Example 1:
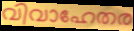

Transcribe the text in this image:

വിവാഹേതര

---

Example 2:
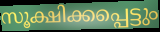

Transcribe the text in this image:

സൂക്ഷിക്കപ്പെട്ടും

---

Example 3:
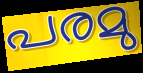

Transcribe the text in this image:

പരമു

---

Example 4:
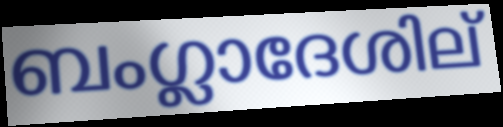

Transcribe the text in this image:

ബംഗ്ലാദേശില്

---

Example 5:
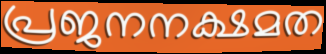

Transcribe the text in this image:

പ്രജനനക്ഷമത